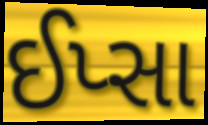
ઈપ્સા